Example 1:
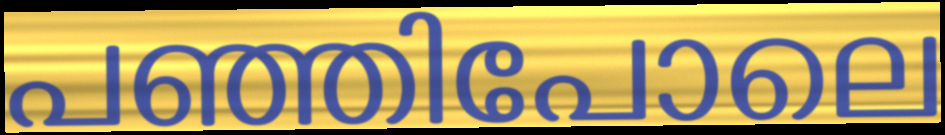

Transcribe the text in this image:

പഞ്ഞിപോലെ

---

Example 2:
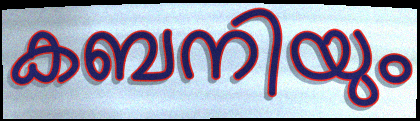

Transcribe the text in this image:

കബനിയും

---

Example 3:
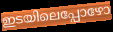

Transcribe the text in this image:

ഇടയിലെപ്പോഴോ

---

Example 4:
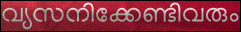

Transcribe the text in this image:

വ്യസനിക്കേണ്ടിവരും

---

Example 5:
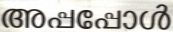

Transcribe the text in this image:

അപ്പപ്പോൾ